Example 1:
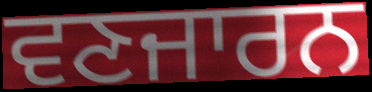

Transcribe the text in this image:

ਵਣਜਾਰਨ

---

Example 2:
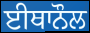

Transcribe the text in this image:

ਈਥਾਨੌਲ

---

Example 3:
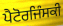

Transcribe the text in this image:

ਪੈਟੋਰਜਿੰਸਕੀ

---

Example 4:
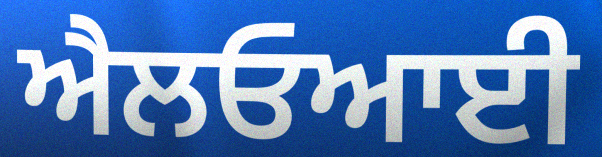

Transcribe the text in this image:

ਐਲਓਆਈ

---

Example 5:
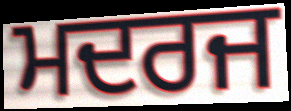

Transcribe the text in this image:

ਮਦਰਜ